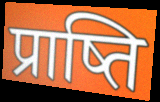
प्राष्ति